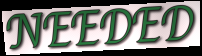
NEEDED